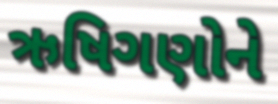
ઋષિગણોને